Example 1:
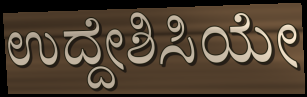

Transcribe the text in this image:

ಉದ್ದೇಶಿಸಿಯೇ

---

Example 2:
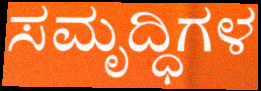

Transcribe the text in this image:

ಸಮೃದ್ಧಿಗಳ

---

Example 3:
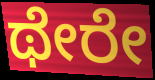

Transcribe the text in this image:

ಥೇರೇ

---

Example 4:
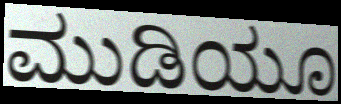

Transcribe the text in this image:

ಮುಡಿಯೂ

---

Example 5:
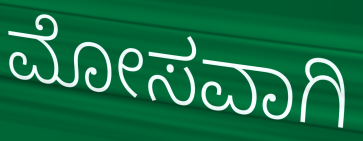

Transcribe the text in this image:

ಮೋಸವಾಗಿ